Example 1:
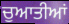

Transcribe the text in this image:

ਚੁਆਤੀਆਂ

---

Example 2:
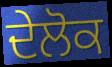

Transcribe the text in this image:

ਦੇਲੋਕ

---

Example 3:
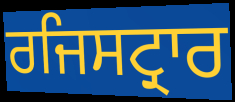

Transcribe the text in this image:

ਰਜਿਸਟ੍ਰਾਰ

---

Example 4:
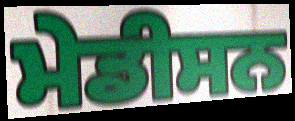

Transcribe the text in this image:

ਮੇਡੀਸਨ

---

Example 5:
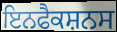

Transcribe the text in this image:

ਇਨਫੈਕਸ਼ਨਸ